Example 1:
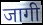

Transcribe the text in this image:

जागी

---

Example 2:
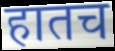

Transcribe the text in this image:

हातच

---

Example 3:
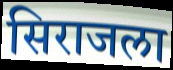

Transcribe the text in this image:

सिराजला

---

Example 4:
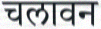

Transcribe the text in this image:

चलावन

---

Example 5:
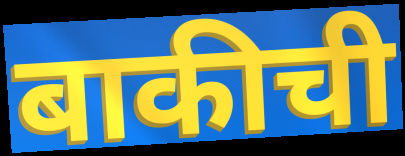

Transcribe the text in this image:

बाकीची